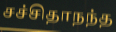
சச்சிதாநந்த